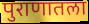
पुराणातला